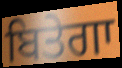
ਬਿਤੇਗਾ